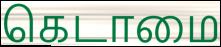
கெடாமை